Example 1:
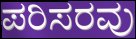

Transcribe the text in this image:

ಪರಿಸರವು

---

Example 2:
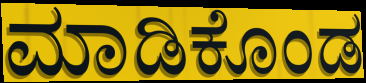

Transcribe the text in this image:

ಮಾಡಿಕೊಂಡ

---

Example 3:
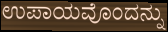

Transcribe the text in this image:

ಉಪಾಯವೊಂದನ್ನು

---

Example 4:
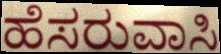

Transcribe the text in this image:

ಹೆಸರುವಾಸಿ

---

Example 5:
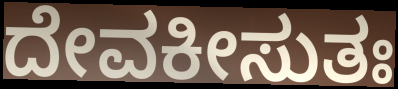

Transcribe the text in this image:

ದೇವಕೀಸುತಃ